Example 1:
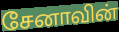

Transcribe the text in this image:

சேனாவின்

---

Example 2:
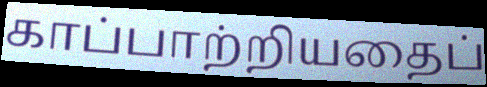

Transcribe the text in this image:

காப்பாற்றியதைப்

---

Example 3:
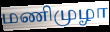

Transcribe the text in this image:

மணிமுழா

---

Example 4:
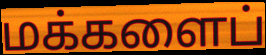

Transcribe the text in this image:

மக்களைப்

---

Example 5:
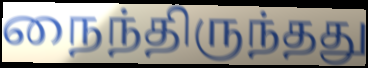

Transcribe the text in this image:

நைந்திருந்தது